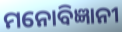
ମନୋବିଜ୍ଞାନୀ